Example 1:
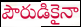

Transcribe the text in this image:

పౌరుడికైనా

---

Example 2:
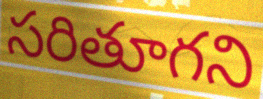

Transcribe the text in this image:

సరితూగని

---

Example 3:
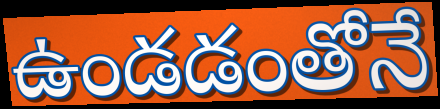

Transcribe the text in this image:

ఉండడంతోనే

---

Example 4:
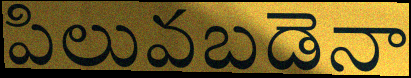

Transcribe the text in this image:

పిలువబడెనా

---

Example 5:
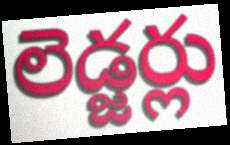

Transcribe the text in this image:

లెడ్జర్లు